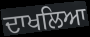
ਦਾਖਲਿਆ